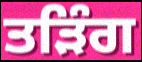
ਤੜਿੰਗ